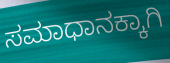
ಸಮಾಧಾನಕ್ಕಾಗಿ